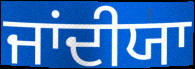
ਜਾਂਦੀਯਾ